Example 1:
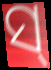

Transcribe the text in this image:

ସ୍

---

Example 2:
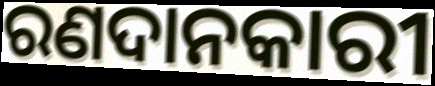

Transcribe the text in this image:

ରଣଦାନକାରୀ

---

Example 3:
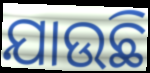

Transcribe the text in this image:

ଯାଉଛି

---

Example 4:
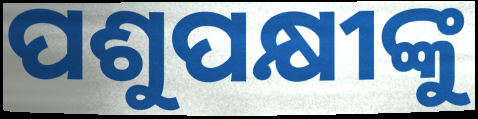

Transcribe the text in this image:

ପଶୁପକ୍ଷୀଙ୍କୁ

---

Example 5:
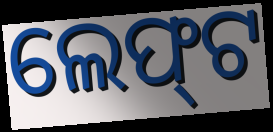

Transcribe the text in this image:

ଲେଫ୍‌ଟ